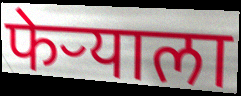
फेऱ्याला